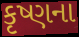
કૃષ્ણના